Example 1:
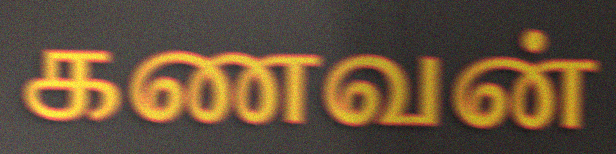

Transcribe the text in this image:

கணவன்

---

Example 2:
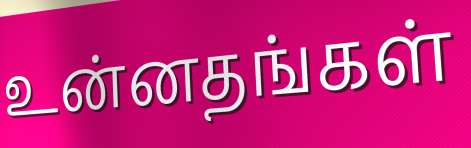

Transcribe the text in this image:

உன்னதங்கள்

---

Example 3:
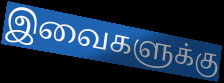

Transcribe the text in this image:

இவைகளுக்கு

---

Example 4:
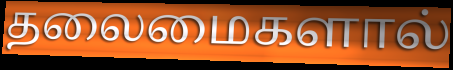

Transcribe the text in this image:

தலைமைகளால்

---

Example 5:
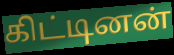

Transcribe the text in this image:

கிட்டினன்